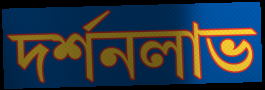
দর্শনলাভ